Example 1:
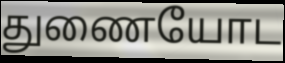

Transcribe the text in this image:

துணையோட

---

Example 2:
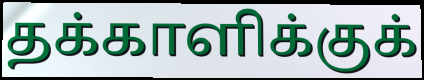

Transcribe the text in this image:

தக்காளிக்குக்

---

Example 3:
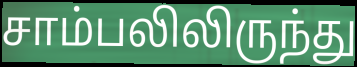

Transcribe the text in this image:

சாம்பலிலிருந்து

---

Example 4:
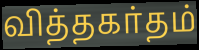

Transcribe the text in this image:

வித்தகர்தம்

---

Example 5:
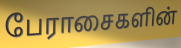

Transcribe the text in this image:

பேராசைகளின்